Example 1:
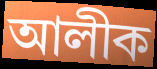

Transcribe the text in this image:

আলীক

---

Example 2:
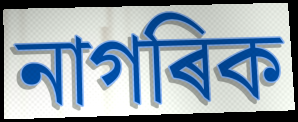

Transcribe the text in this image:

নাগৰিক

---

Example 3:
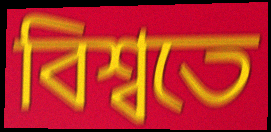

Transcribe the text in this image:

বিশ্বতে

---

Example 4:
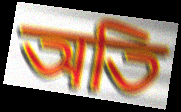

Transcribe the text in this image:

অতি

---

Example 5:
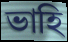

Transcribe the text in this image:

ভাহি